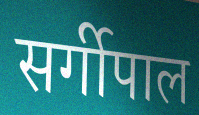
सर्गीपाल